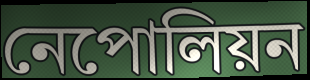
নেপোলিয়ন